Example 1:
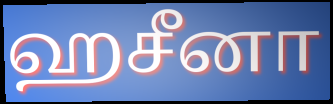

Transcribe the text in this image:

ஹசீனா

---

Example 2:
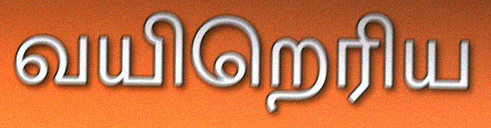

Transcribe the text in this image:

வயிறெரிய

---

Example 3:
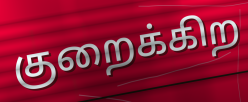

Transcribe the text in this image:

குறைக்கிற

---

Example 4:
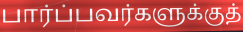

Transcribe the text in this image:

பார்ப்பவர்களுக்குத்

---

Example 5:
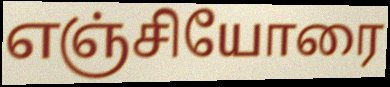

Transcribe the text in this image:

எஞ்சியோரை